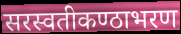
सरस्वतीकण्ठाभरण